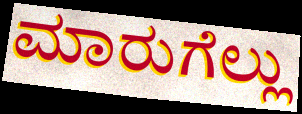
ಮಾರುಗೆಲ್ಲು